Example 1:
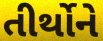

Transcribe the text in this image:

તીર્થોને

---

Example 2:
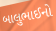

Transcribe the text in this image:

બાલુભાઈનો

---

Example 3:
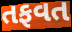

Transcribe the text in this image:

તફવત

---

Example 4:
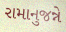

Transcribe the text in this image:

રામાનુજન્ને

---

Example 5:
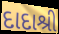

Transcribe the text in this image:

દાદાશ્રી